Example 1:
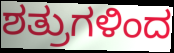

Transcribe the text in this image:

ಶತ್ರುಗಳಿಂದ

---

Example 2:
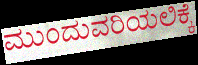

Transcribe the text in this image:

ಮುಂದುವರಿಯಲಿಕ್ಕೆ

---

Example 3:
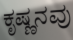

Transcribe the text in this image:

ಕೃಷ್ಣನವು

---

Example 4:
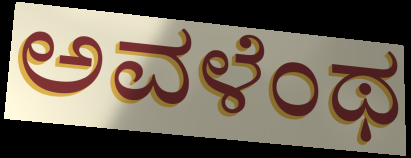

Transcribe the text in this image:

ಅವಳೆಂಥ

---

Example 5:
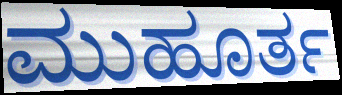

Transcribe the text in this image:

ಮುಹೂರ್ತ